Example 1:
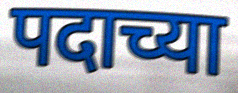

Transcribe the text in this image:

पदाच्या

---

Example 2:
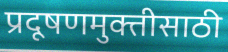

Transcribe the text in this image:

प्रदूषणमुक्तीसाठी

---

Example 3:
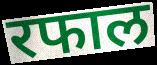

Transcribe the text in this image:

रफाल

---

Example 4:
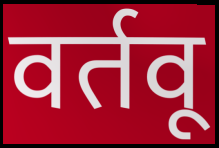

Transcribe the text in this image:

वर्तवू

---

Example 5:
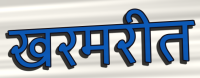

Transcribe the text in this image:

खरमरीत